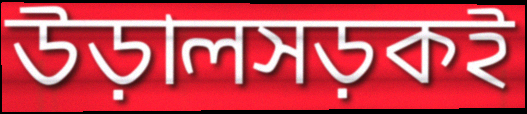
উড়ালসড়কই